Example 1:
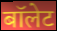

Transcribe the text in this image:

बॉलेट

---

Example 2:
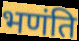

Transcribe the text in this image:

भणंति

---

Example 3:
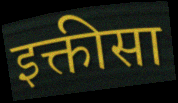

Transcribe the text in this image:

इक्तीसा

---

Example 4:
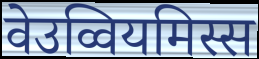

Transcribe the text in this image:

वेउव्वियमिस्स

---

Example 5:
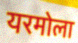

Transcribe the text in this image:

यरमोला